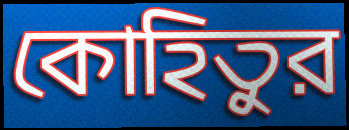
কোহিতুর